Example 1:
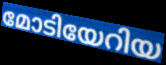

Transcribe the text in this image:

മോടിയേറിയ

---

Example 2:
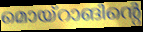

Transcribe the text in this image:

മൊയ്റാങിന്റെ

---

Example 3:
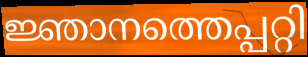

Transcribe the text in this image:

ജ്ഞാനത്തെപ്പറ്റി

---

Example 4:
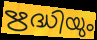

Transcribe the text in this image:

ഋദ്ധിയും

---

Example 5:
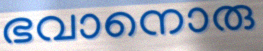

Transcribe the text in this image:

ഭവാനൊരു